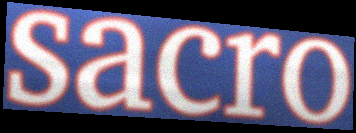
sacro